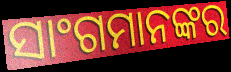
ସାଂଗମାନଙ୍କର